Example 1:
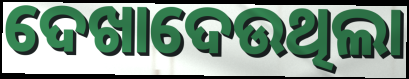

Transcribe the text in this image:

ଦେଖାଦେଉଥିଲା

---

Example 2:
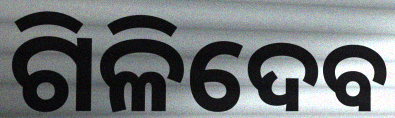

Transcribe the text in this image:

ଗିଳିଦେବ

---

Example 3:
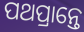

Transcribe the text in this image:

ପଥପ୍ରାନ୍ତେ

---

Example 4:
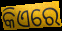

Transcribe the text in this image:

କିଏରେ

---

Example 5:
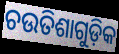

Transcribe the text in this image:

ଚଉତିଶାଗୁଡ଼ିକ